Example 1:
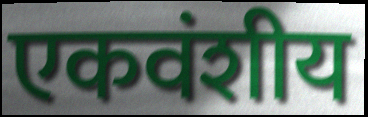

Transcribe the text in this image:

एकवंशीय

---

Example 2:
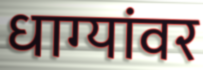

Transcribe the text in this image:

धाग्यांवर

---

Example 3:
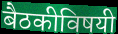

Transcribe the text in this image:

बैठकीविषयी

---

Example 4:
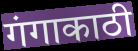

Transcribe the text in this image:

गंगाकाठी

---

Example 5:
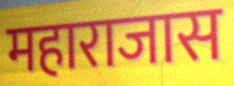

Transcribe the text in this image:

महाराजास